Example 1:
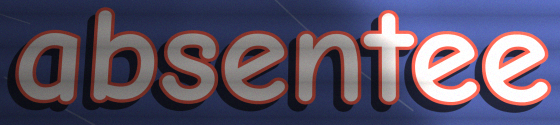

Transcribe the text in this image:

absentee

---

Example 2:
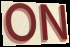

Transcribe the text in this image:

ON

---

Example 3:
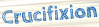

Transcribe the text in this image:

Crucifixion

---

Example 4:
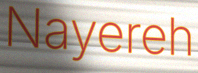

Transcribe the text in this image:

Nayereh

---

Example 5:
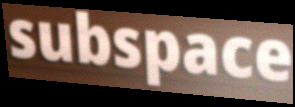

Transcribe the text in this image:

subspace